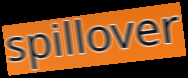
spillover